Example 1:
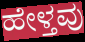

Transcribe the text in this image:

ಹೇಳ್ತವು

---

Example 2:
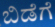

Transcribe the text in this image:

ಬಿಡೆಗೆ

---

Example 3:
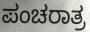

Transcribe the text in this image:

ಪಂಚರಾತ್ರ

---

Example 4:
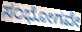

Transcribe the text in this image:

ಸಂಭೋಗವೇ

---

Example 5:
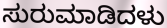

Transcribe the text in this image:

ಸುರುಮಾಡಿದಳು